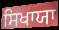
ਸਿਖਾਯਾ